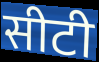
सीटी